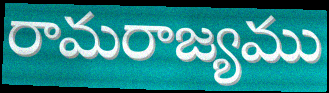
రామరాజ్యము